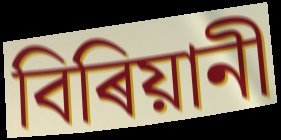
বিৰিয়ানী